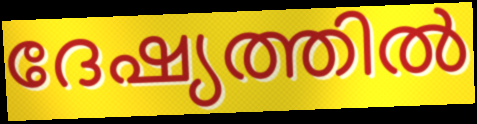
ദേഷ്യത്തിൽ